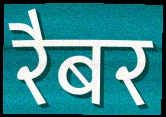
रैबर